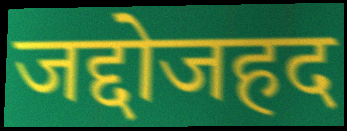
जद्दोजहद